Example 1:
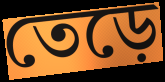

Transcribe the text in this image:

তেড়ে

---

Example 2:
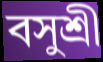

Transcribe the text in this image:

বসুশ্রী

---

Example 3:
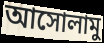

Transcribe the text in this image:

আসোলামু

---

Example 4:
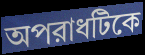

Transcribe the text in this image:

অপরাধটিকে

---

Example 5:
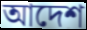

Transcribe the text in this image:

আদেশ